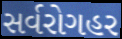
સર્વરોગહર